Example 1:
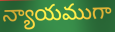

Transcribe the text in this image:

న్యాయముగా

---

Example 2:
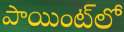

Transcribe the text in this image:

పాయింట్‌లో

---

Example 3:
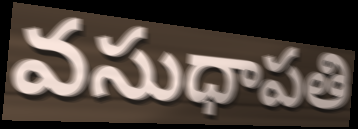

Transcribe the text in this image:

వసుధాపతి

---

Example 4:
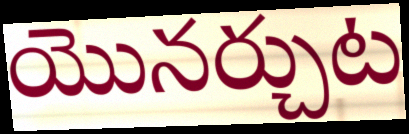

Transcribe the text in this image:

యొనర్చుట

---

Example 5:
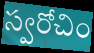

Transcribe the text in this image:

స్వరోచిం